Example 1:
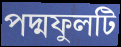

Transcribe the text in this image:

পদ্মফুলটি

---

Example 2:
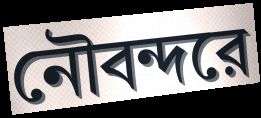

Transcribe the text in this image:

নৌবন্দরে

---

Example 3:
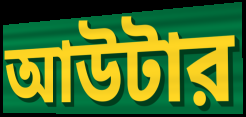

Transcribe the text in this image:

আউটার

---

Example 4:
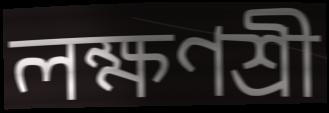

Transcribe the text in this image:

লক্ষণশ্রী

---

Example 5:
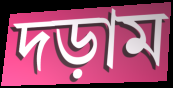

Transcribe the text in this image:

দড়াম